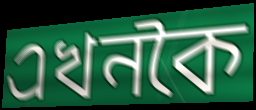
এখনকৈ